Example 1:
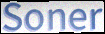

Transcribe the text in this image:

Soner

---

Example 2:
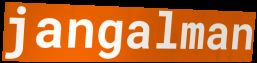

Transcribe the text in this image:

jangalman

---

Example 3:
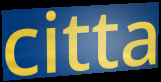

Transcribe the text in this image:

citta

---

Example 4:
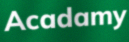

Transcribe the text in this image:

Acadamy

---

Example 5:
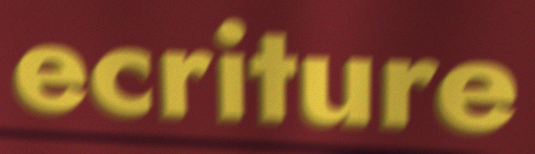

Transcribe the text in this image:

ecriture